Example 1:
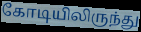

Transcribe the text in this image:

கோடியிலிருந்து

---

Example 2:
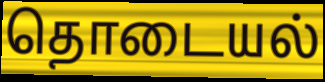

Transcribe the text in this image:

தொடையல்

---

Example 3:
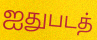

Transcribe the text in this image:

ஐதுபடத்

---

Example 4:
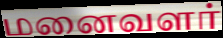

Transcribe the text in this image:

மனைவளர்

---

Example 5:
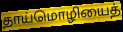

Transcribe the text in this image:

தாய்மொழியைத்